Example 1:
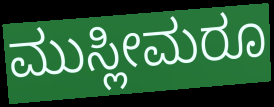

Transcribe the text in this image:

ಮುಸ್ಲೀಮರೂ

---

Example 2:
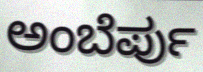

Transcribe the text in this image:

ಅಂಬೆರ್ಪು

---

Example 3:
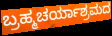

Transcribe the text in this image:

ಬ್ರಹ್ಮಚರ್ಯಾಶ್ರಮದ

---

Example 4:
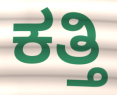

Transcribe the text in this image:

ಕತ್ತಿ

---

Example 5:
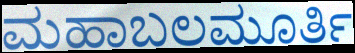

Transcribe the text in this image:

ಮಹಾಬಲಮೂರ್ತಿ